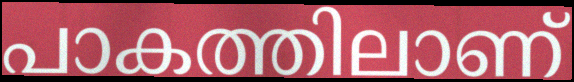
പാകത്തിലാണ്